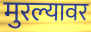
मुरल्यावर